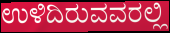
ಉಳಿದಿರುವವರಲ್ಲಿ